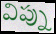
విప్ను